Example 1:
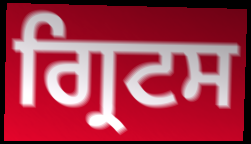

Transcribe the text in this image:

ਗ੍ਰਿਟਸ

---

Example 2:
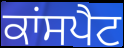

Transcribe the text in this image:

ਕਾਂਸਪੈਟ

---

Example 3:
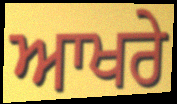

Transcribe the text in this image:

ਆਖਰੇ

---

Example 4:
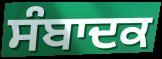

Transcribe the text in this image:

ਸੰਬਾਦਕ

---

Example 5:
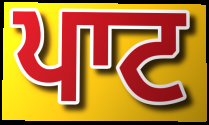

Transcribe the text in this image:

ਪਾਟ